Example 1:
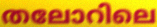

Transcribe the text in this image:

തലോറിലെ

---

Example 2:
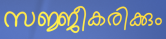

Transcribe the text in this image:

സജ്ജീകരിക്കും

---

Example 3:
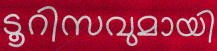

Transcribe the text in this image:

ടൂറിസവുമായി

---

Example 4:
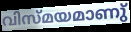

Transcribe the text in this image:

വിസ്മയമാണു്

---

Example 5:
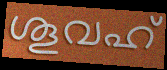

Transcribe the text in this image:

ശൂവഹ്